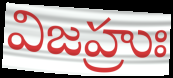
విజహ్రుః